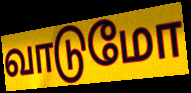
வாடுமோ